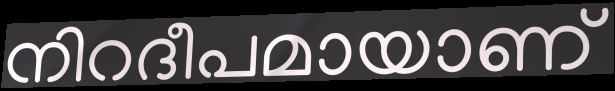
നിറദീപമായാണ്